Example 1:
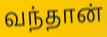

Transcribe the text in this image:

வந்தான்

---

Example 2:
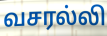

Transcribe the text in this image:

வசரல்லி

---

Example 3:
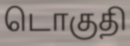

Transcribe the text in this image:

டொகுதி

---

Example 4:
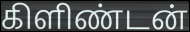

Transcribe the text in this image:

கிளிண்டன்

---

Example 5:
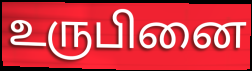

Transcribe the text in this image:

உருபினை